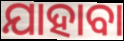
ଯାହାବା